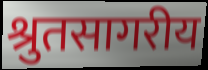
श्रुतसागरीय